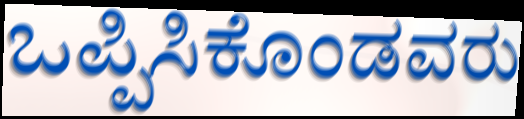
ಒಪ್ಪಿಸಿಕೊಂಡವರು